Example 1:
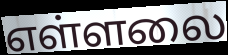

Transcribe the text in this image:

எள்ளலை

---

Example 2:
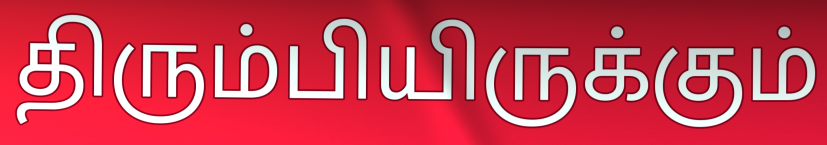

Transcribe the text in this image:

திரும்பியிருக்கும்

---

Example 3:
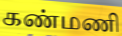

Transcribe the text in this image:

கண்மணி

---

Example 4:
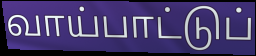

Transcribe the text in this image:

வாய்பாட்டுப்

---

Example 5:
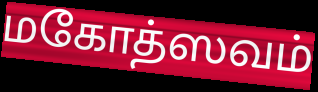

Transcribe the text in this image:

மகோத்ஸவம்